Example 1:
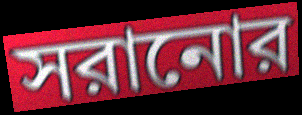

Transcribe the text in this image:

সরানোর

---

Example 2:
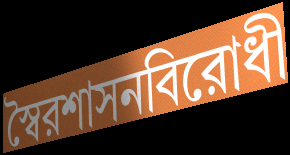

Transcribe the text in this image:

স্বৈরশাসনবিরোধী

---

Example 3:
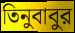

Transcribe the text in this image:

তিনুবাবুর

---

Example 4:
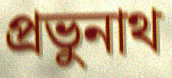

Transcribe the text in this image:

প্রভুনাথ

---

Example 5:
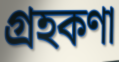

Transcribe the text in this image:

গ্রহকণা